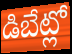
డిబేట్లో